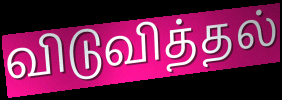
விடுவித்தல்